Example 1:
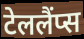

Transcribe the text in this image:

टेललैंप्स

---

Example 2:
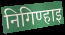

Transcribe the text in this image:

निगिण्हाइ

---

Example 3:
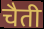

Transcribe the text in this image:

चैती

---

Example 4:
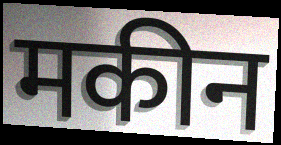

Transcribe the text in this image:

मकीन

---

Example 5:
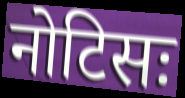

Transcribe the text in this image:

नोटिसः